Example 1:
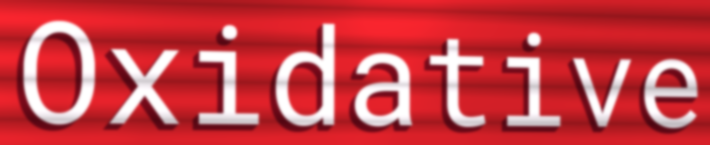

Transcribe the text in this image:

Oxidative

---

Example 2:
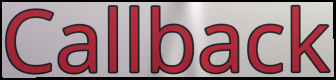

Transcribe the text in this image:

Callback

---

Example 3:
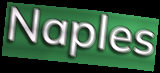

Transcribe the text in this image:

Naples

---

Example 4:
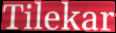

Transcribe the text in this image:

Tilekar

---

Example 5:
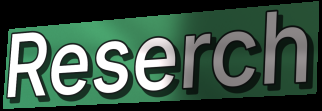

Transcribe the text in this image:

Reserch